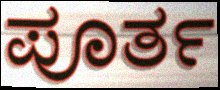
ಪೂರ್ತ